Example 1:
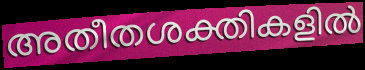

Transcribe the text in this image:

അതീതശക്തികളിൽ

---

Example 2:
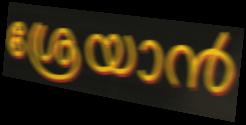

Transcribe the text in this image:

ശ്രേയാൻ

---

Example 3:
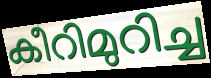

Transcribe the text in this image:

കീറിമുറിച്ച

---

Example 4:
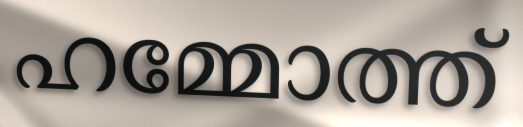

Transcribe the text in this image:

ഹമ്മോത്ത്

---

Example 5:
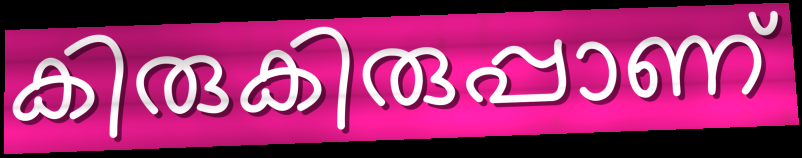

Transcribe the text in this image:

കിരുകിരുപ്പാണ്